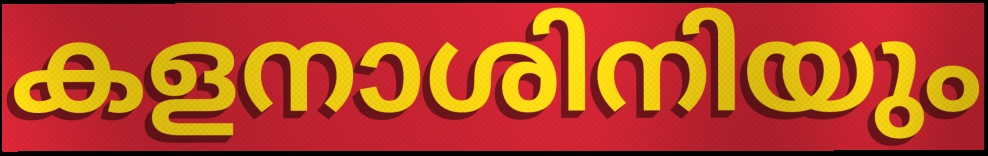
കളനാശിനിയും